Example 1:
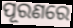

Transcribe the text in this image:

ପୂରଣରେ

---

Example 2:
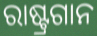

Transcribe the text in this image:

ରାଷ୍ଟ୍ରଗାନ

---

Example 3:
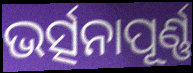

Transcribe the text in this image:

ଭର୍ତ୍ସନାପୂର୍ଣ୍ଣ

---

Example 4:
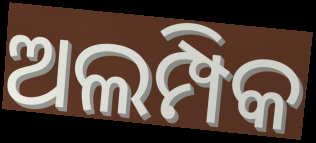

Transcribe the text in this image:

ଅଲମ୍ପିକ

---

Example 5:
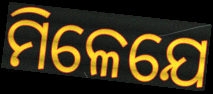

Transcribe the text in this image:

ମିଳେଯେ